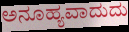
ಅನೂಹ್ಯವಾದುದು